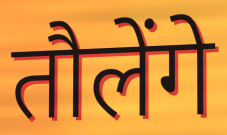
तौलेंगे